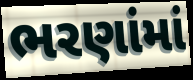
ભરણાંમાં